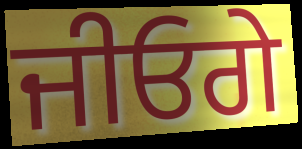
ਜੀਓਗੇ